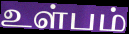
உள்பம்